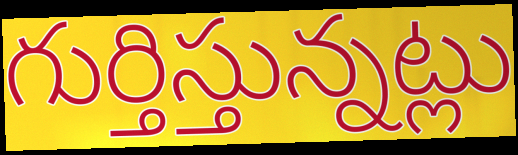
గుర్తిస్తున్నట్లు